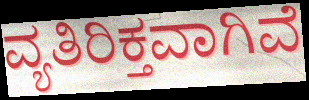
ವ್ಯತಿರಿಕ್ತವಾಗಿವೆ